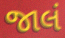
જાલં